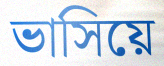
ভাসিয়ে